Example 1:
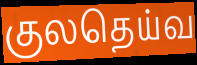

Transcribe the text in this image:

குலதெய்வ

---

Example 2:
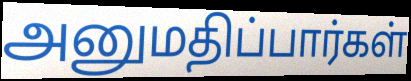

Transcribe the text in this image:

அனுமதிப்பார்கள்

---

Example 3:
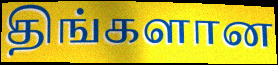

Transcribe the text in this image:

திங்களான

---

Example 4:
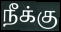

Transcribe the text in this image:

நீக்கு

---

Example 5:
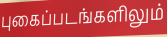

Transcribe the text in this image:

புகைப்படங்களிலும்